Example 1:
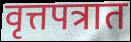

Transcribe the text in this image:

वृत्तपत्रात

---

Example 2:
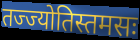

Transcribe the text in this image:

तज्ज्योतिस्तमसः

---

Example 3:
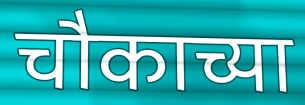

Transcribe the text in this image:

चौकाच्या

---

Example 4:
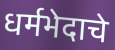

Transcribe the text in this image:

धर्मभेदाचे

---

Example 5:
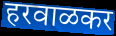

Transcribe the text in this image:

हरवाळकर